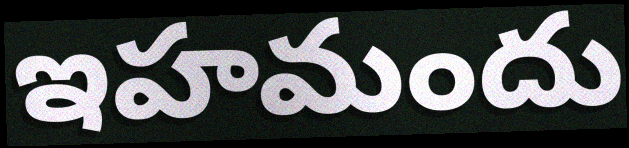
ఇహమందు